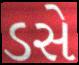
ડસે